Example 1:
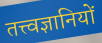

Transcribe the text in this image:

तत्त्वज्ञानियों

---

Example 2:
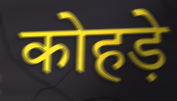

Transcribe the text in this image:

कोहड़े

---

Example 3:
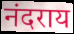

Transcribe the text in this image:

नंदराय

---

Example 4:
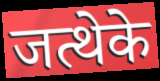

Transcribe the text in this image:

जत्थेके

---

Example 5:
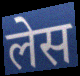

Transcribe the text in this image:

लेस